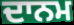
ਦਾਨਮ